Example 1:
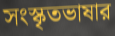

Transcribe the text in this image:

সংস্কৃতভাষার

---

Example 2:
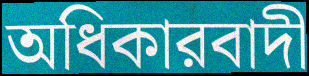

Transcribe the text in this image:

অধিকারবাদী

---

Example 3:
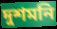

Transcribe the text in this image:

দুশমনি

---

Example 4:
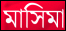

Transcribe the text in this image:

মাসিমা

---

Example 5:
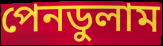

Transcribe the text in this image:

পেনডুলাম